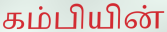
கம்பியின்